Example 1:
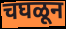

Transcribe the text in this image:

चघळून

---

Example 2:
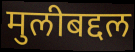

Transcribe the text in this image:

मुलीबद्दल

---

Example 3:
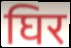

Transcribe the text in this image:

घिर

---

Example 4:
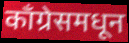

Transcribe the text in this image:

काँग्रेसमधून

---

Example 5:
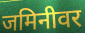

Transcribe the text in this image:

जमिनीवर